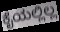
ಕೈಯಲ್ಲಿಲ್ಲ